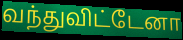
வந்துவிட்டேனா